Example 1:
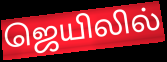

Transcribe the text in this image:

ஜெயிலில்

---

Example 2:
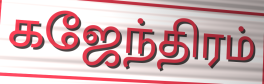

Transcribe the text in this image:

கஜேந்திரம்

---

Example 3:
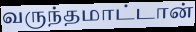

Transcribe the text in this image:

வருந்தமாட்டான்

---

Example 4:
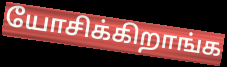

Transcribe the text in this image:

யோசிக்கிறாங்க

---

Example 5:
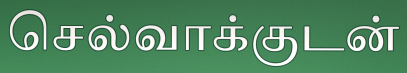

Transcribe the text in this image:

செல்வாக்குடன்